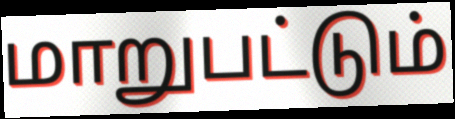
மாறுபட்டும்